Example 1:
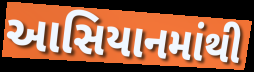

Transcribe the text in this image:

આસિયાનમાંથી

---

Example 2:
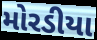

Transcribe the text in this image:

મોરડીયા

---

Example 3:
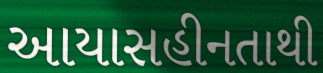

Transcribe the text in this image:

આયાસહીનતાથી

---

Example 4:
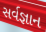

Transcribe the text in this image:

સર્વજ્ઞાન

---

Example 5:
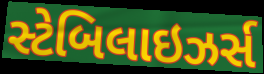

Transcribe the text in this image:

સ્ટેબિલાઇઝર્સ